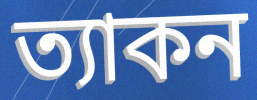
ত্যাকন